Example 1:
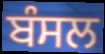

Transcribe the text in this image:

ਬੰਸਲ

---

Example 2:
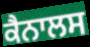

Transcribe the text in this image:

ਕੈਨਾਲਸ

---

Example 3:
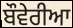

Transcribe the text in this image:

ਬੌਵੇਰੀਆ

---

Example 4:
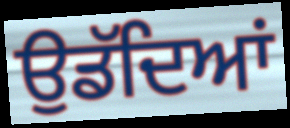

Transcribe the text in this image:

ਉਡੱਦਿਆਂ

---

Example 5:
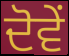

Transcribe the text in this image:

ਦੋਵੇਂ